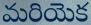
మరియెక